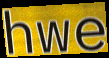
hwe